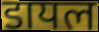
डायल